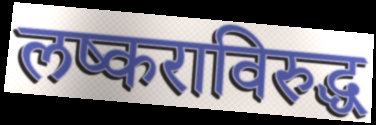
लष्कराविरुद्ध